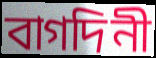
বাগদিনী